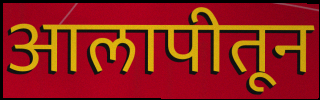
आलापीतून